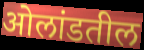
ओलांडतील